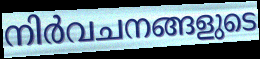
നിർവചനങ്ങളുടെ